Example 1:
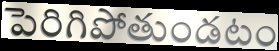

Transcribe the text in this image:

పెరిగిపోతుండటం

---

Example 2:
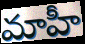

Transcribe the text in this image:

మాహీ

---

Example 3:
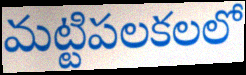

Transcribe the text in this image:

మట్టిపలకలలో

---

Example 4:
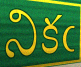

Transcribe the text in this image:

నికఁ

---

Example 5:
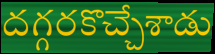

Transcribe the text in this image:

దగ్గరకొచ్చేశాడు